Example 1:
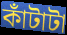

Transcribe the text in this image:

কাঁটাটা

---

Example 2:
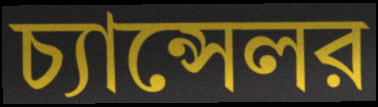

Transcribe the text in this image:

চ্যান্সেলর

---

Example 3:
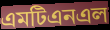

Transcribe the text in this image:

এমটিএনএল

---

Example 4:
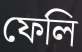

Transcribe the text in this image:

ফেলি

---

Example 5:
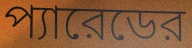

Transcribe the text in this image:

প্যারেডের